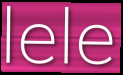
lele